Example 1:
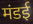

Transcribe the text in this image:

मंडई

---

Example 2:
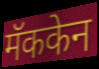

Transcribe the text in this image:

मॅककेन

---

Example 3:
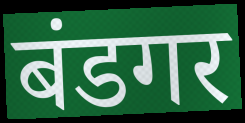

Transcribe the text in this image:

बंडगर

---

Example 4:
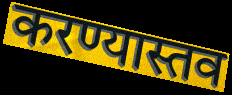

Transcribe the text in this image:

करण्यास्तव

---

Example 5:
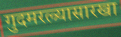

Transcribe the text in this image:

गुदमरल्यासारखा